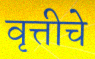
वृत्तीचे